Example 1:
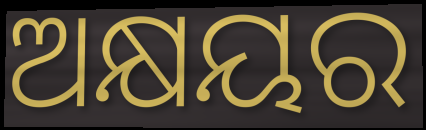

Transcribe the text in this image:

ଅକ୍ଷୟର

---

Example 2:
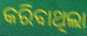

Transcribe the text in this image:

କରିବାଥିଲା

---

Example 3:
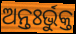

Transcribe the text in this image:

ଅନ୍ତଃର୍ଭୁକ୍ତ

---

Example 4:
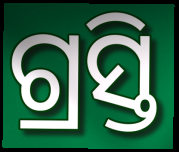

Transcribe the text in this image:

ଗ୍ରସ୍ତି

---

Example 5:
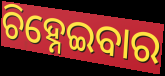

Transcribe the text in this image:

ଚିହ୍ନେଇବାର